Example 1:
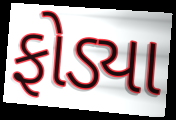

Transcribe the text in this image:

ફોડ્યા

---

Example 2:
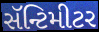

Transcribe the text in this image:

સૅન્ટિમીટર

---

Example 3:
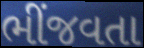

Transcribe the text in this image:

ભીંજવતા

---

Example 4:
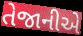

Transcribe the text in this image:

તેજાનીએ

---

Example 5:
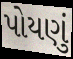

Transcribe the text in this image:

પોયણું